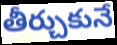
తీర్చుకునే